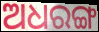
ଅଧରଙ୍ଗ